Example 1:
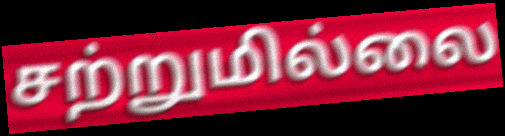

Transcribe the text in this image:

சற்றுமில்லை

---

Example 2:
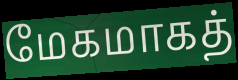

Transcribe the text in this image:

மேகமாகத்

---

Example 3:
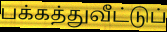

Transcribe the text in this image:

பக்கத்துவீட்டுப்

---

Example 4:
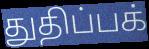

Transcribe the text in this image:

துதிப்பக்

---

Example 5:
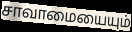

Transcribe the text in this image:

சாவாமையையும்